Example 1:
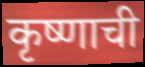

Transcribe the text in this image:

कृष्णाची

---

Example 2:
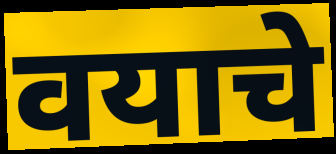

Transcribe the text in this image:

वयाचे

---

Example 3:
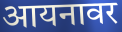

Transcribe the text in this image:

आयनावर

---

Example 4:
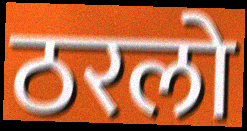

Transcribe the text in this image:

ठरलो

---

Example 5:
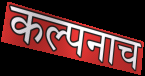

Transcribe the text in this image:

कल्पनाच